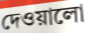
দেওয়ালো